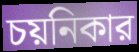
চয়নিকার